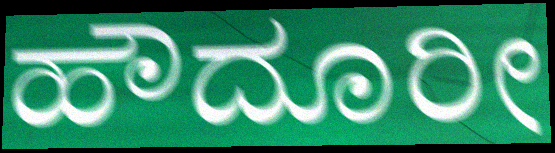
ಹೌದೂರೀ